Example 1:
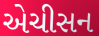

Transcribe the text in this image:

એચીસન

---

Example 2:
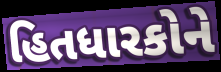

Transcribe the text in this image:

હિતધારકોને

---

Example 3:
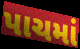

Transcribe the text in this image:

પાચમાં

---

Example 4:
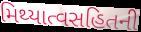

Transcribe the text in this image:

મિથ્યાત્વસહિતની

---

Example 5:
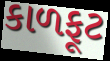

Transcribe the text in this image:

કાળફૂટ